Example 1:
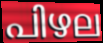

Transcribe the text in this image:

പിഴല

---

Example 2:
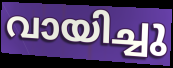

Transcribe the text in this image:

വായിച്ചു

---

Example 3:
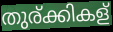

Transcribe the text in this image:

തുര്ക്കികള്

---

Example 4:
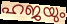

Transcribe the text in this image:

ഹജയും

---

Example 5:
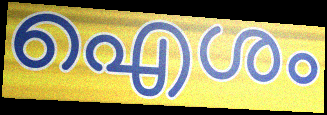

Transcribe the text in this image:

ഐശം